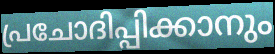
പ്രചോദിപ്പിക്കാനും